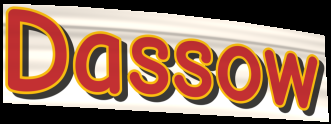
Dassow